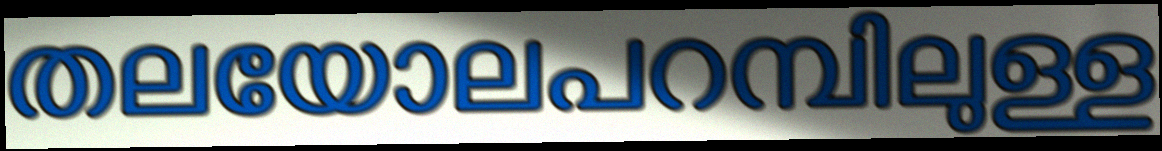
തലയോലപറമ്പിലുള്ള